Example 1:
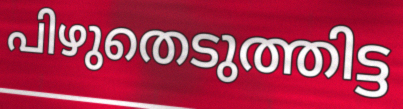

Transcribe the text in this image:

പിഴുതെടുത്തിട്ട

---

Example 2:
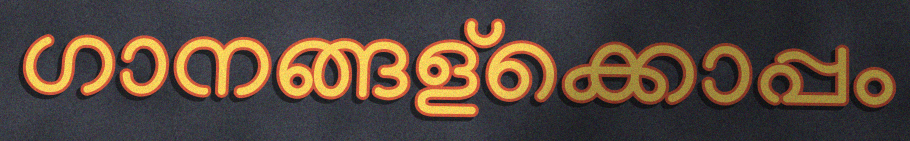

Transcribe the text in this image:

ഗാനങ്ങള്ക്കൊപ്പം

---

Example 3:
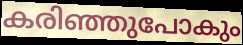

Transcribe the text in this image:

കരിഞ്ഞുപോകും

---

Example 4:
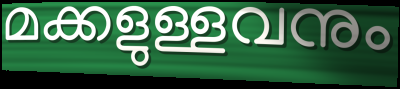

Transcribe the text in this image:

മക്കളുള്ളവനും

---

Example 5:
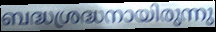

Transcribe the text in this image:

ബദ്ധശ്രദ്ധനായിരുന്നു